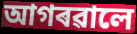
আগৰৱালে